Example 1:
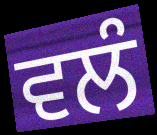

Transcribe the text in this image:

ਵਲੰ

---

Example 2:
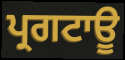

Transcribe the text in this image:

ਪ੍ਰਗਟਾਊ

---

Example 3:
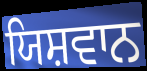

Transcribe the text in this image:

ਯਿਸ਼ਵਾਨ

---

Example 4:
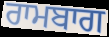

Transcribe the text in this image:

ਰਾਮਬਾਗ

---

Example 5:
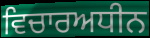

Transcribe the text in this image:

ਵਿਚਾਰਅਧੀਨ